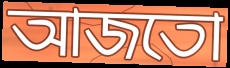
আজতো